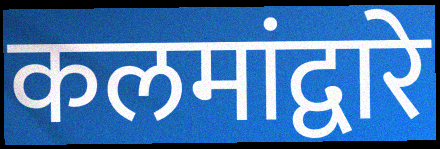
कलमांद्वारे